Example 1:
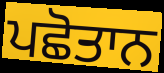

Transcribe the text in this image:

ਪਛੋਤਾਨ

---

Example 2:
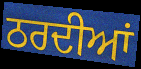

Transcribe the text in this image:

ਠਰਦੀਆਂ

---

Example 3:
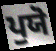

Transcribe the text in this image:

ਪੁਯੋ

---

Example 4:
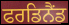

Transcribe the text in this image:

ਫਰਡਿਨੈਂਡ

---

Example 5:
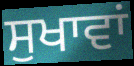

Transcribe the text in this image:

ਸੁਖਾਵਾਂ